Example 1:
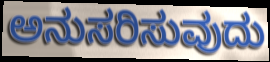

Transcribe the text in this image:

ಅನುಸರಿಸುವುದು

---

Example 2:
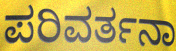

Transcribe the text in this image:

ಪರಿವರ್ತನಾ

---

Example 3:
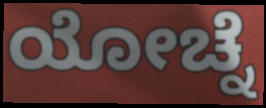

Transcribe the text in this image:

ಯೋಚ್ನೆ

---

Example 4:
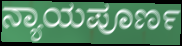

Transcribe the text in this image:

ನ್ಯಾಯಪೂರ್ಣ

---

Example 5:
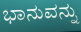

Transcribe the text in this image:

ಭಾನುವನ್ನು